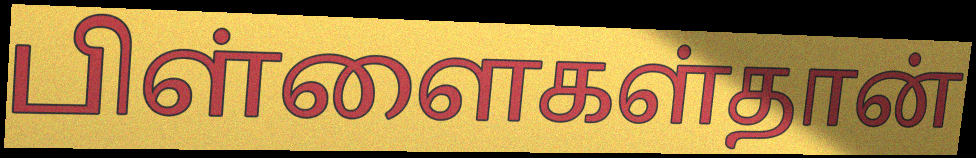
பிள்ளைகள்தான்